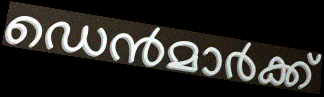
ഡെൻമാർക്ക്